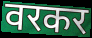
वरकर